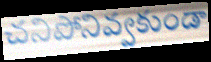
చనిపోనివ్వకుండా